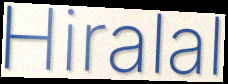
Hiralal